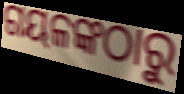
ଗୟଳଙ୍କଠାରୁ